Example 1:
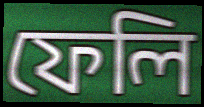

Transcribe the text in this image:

ফেলি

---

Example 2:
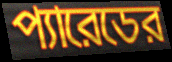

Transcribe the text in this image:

প্যারেডের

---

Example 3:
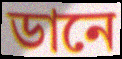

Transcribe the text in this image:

ডানে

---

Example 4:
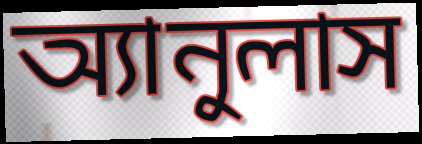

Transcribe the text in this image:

অ্যানুলাস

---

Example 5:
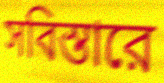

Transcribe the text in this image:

সবিস্তারে